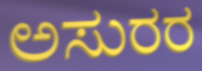
ಅಸುರರ